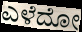
ಎಳೆದೋ